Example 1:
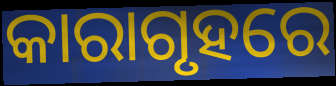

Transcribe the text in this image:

କାରାଗୃହରେ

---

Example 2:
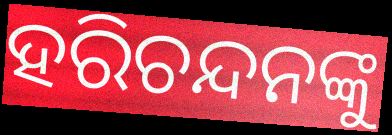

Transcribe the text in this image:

ହରିଚନ୍ଦନଙ୍କୁ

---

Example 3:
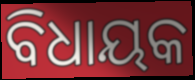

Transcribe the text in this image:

ବିଧାୟକ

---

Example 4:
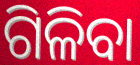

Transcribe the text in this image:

ଗିଳିବା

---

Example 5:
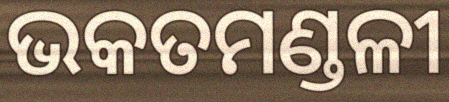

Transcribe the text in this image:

ଭକତମଣ୍ଡଳୀ